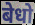
बेधो